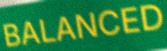
BALANCED